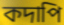
কদাপি